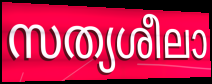
സത്യശീലാ